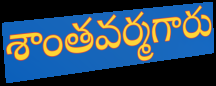
శాంతవర్మగారు